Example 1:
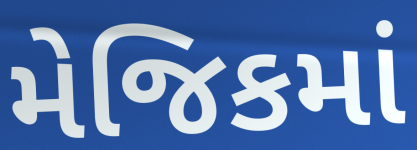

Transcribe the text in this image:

મેજિકમાં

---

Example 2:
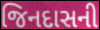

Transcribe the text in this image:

જિનદાસની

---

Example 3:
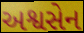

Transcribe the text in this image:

અશ્વસેન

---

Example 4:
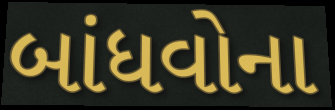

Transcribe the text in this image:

બાંધવોના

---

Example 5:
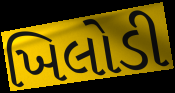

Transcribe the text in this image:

ખિલોડી